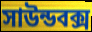
সাউন্ডবক্স